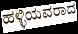
ಹಳ್ಳಿಯವರಾದ